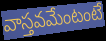
వాస్తవమేంటంటే